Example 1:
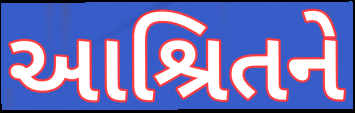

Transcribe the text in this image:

આશ્રિતને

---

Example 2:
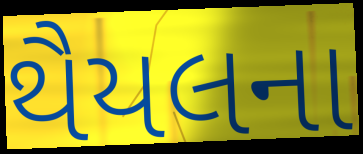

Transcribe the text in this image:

થૈયલના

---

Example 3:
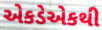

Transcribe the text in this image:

એકડેએકથી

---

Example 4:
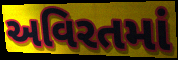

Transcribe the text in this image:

અવિરતમાં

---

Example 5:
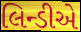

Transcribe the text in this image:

લિન્ડીએ